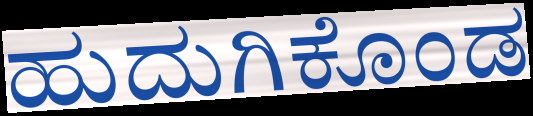
ಹುದುಗಿಕೊಂಡ